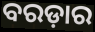
ବରଡ଼ାର